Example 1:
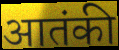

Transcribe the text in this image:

आतंकी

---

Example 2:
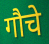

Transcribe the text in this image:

गौचे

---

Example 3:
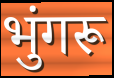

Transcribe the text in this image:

भुंगरू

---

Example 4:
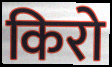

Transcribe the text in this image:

किरो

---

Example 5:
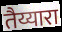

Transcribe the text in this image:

तैय्यारा